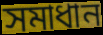
সমাধান